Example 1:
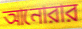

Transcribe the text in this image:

আনোরার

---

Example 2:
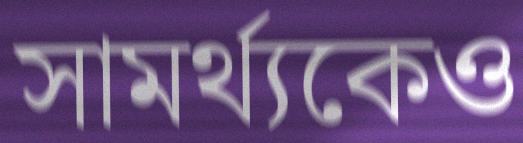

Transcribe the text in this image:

সামর্থ্যকেও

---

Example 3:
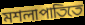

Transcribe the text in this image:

মশলাপাতিতে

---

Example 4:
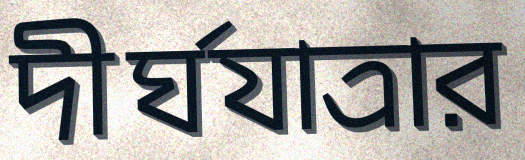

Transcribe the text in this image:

দীর্ঘযাত্রার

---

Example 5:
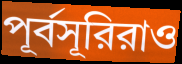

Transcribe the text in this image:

পূর্বসূরিরাও